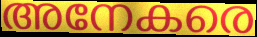
അനേകരെ